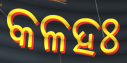
କଳହଃ